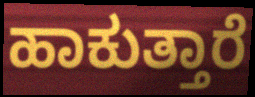
ಹಾಕುತ್ತಾರೆ